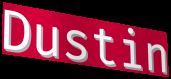
Dustin